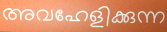
അവഹേളിക്കുന്ന